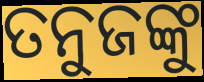
ତନୁଜଙ୍କୁ